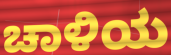
ಚಾಳಿಯ